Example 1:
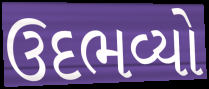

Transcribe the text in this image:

ઉદભવ્યો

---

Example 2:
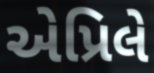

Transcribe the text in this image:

એપ્રિલે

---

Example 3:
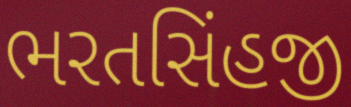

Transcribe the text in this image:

ભરતસિંહજી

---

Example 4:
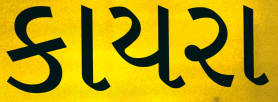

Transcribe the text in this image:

કાયરા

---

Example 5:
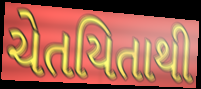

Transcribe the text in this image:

ચેતયિતાથી